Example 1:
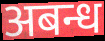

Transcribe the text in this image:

अबन्ध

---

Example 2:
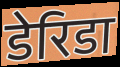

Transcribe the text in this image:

डेरिडा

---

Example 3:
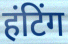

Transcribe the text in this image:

हंटिंग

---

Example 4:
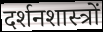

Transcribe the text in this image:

दर्शनशास्त्रों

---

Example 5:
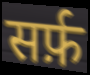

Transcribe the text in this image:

सर्फ़